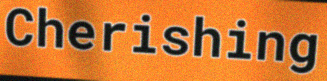
Cherishing